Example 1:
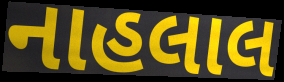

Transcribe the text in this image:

નાહલાલ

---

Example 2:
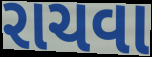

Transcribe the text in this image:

રાચવા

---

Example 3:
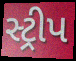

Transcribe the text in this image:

સ્ટ્રીપ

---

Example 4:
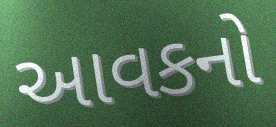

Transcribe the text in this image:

આવકનો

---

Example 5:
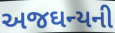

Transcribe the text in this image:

અજઘન્યની